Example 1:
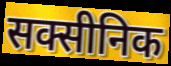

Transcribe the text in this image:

सक्सीनिक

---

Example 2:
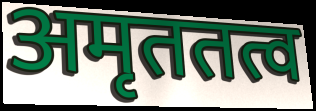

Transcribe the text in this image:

अमृततत्व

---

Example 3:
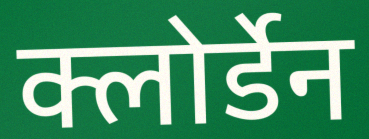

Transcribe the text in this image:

क्लोर्डेन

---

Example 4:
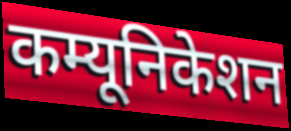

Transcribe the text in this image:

कम्यूनिकेशन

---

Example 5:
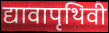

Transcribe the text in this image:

द्यावापृथिवी